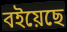
বইয়েছে